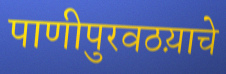
पाणीपुरवठय़ाचे